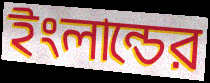
ইংলান্ডের